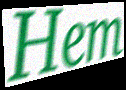
Hem